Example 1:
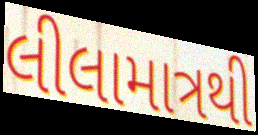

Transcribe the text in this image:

લીલામાત્રથી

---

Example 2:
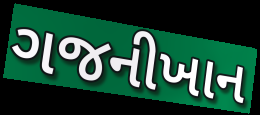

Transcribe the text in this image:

ગજનીખાન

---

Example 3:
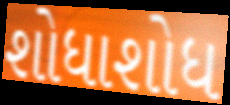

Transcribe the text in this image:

શોધાશોધ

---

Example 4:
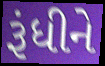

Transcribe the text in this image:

રૂંધીને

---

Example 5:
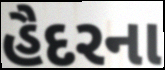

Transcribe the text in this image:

હૈદરના